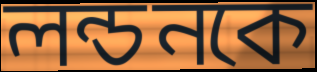
লন্ডনকে